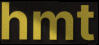
hmt